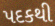
પદકથી